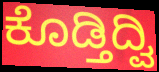
ಕೊಡ್ತಿದ್ವಿ